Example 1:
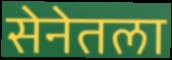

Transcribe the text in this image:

सेनेतला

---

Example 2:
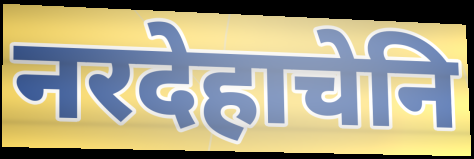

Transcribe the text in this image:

नरदेहाचेनि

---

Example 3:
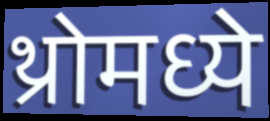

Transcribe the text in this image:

थ्रोमध्ये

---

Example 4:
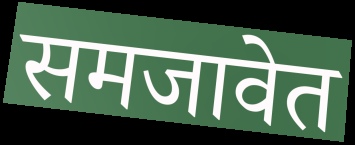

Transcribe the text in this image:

समजावेत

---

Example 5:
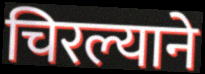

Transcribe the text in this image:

चिरल्याने